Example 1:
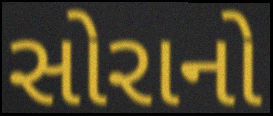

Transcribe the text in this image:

સોરાનો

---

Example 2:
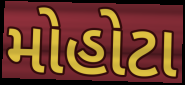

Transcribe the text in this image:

મોહોટા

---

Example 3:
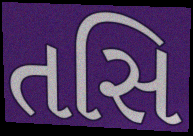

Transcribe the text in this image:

તસિ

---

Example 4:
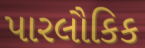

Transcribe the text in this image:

પારલૌકિક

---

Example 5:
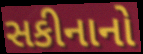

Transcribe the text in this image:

સકીનાનો